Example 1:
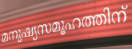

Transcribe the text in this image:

മനുഷ്യസമൂഹത്തിന്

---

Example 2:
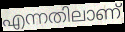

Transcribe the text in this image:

എന്നതിലാണ്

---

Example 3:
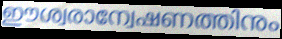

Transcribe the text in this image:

ഈശ്വരാന്വേഷണത്തിനും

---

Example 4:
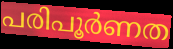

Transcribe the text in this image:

പരിപൂർണത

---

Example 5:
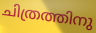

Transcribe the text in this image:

ചിത്രത്തിനു